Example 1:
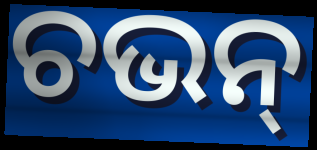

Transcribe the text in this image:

ଚଭନ୍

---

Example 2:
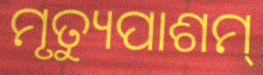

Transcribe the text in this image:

ମୃତ୍ୟୁପାଶମ୍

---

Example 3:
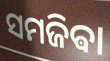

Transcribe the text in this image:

ସମଜିଵା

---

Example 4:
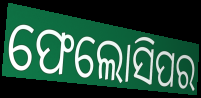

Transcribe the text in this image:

ଫେଲୋସିପର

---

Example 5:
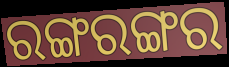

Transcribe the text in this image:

ରଙ୍ଗରଙ୍ଗର